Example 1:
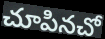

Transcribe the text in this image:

చూపినచో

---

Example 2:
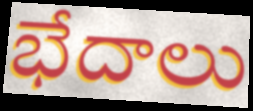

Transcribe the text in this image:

భేదాలు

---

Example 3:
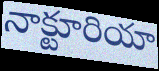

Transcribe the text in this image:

నాక్టూరియా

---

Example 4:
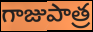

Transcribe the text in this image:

గాజుపాత్ర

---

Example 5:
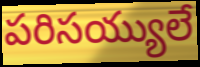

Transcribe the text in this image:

పరిసయ్యులే